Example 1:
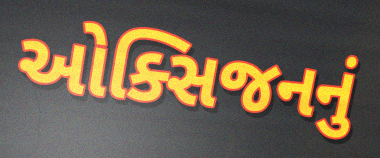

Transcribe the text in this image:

ઓક્સિજનનું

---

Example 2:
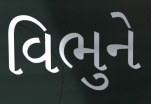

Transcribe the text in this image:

વિભુને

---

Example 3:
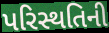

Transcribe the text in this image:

પરિસ્થતિની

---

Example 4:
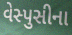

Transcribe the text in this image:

વેસ્પુસીના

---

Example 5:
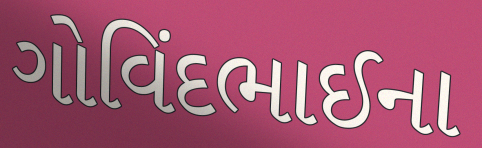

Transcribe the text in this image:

ગોવિંદભાઈના